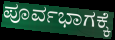
ಪೂರ್ವಭಾಗಕ್ಕೆ